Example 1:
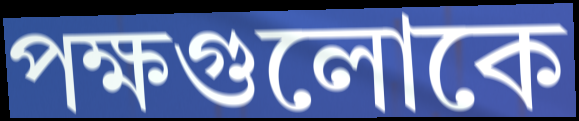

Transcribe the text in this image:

পক্ষগুলোকে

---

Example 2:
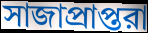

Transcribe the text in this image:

সাজাপ্রাপ্তরা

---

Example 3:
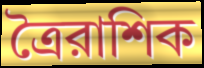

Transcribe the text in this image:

ত্রৈরাশিক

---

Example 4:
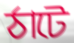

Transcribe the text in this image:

ঠাটে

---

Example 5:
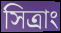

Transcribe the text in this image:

সিত্রাং